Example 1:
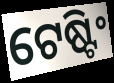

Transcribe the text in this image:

ଟେଷ୍ଟିଂ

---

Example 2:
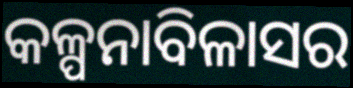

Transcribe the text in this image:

କଳ୍ପନାବିଳାସର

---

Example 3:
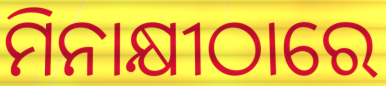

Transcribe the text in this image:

ମିନାକ୍ଷୀଠାରେ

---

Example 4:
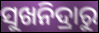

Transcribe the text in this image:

ସୁଖନିଦ୍ରାରୁ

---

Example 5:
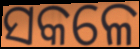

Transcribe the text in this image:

ସକଳେ